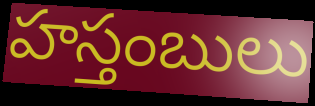
హస్తంబులు